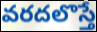
వరదలొస్తే